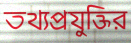
তথ্যপ্রযুক্তির